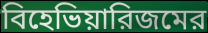
বিহেভিয়ারিজমের